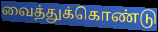
வைத்துக்கொண்டு